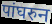
पांघरुन